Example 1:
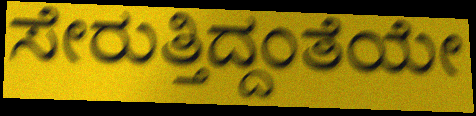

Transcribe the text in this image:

ಸೇರುತ್ತಿದ್ದಂತೆಯೇ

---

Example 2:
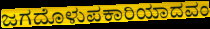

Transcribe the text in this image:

ಜಗದೊಳುಪಕಾರಿಯಾದವಂ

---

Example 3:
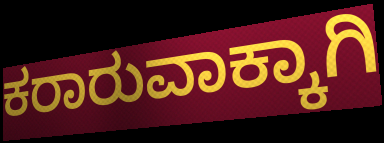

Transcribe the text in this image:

ಕರಾರುವಾಕ್ಕಾಗಿ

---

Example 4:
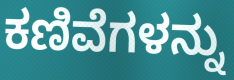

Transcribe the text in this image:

ಕಣಿವೆಗಳನ್ನು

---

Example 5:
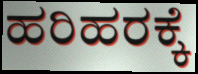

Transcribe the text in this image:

ಹರಿಹರಕ್ಕೆ